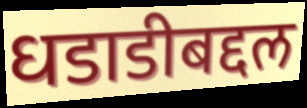
धडाडीबद्दल